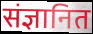
संज्ञानित